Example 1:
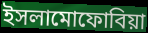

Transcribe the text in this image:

ইসলামোফোবিয়া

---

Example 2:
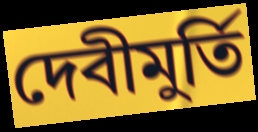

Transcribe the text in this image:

দেবীমুর্তি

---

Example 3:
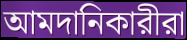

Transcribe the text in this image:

আমদানিকারীরা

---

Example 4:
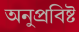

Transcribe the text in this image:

অনুপ্রবিষ্ট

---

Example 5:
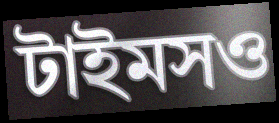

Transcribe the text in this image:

টাইমসও